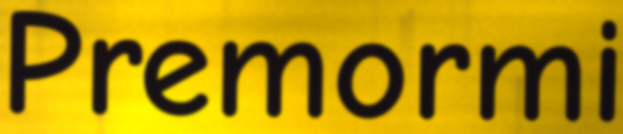
Premormi